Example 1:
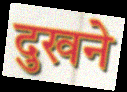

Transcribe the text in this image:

दुखने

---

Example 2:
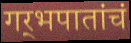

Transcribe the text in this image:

गर्भपातांचं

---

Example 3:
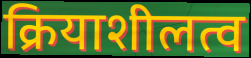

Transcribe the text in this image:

क्रियाशीलत्व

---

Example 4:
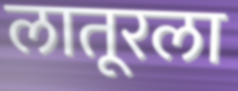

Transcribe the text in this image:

लातूरला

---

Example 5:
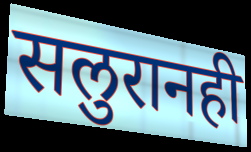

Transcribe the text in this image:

सलुरानही